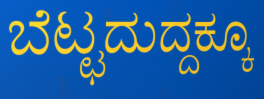
ಬೆಟ್ಟದುದ್ದಕ್ಕೂ